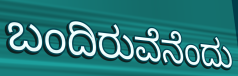
ಬಂದಿರುವೆನೆಂದು